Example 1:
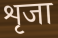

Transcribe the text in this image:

शृजा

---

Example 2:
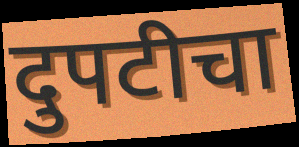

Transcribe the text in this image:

दुपटीचा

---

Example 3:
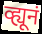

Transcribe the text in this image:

व्ह्यूनं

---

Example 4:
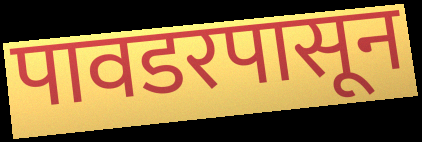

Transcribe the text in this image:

पावडरपासून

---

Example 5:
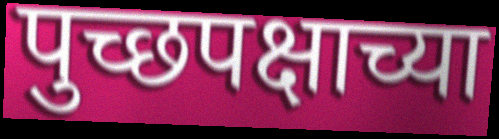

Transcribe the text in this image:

पुच्छपक्षाच्या